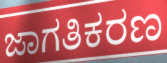
ಜಾಗತಿಕರಣ